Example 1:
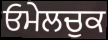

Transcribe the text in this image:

ਓਮੇਲਚੁਕ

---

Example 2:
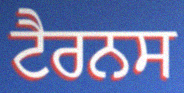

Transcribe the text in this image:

ਟੈਰਨਸ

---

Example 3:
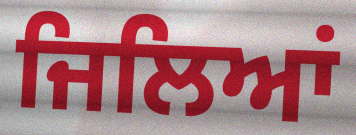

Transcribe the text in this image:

ਜਿਲਿਆਂ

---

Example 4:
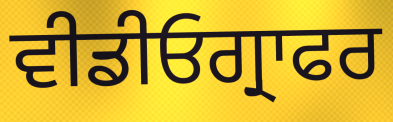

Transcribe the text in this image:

ਵੀਡੀਓਗ੍ਰਾਫਰ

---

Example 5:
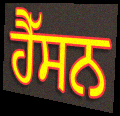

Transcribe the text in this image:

ਹੈੱਸਨ